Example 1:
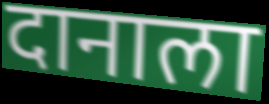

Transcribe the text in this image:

दानाला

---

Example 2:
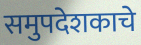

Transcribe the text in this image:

समुपदेशकाचे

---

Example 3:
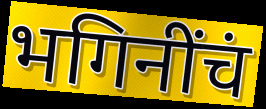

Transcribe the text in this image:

भगिनींचं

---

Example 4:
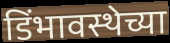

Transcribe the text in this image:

डिंभावस्थेच्या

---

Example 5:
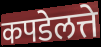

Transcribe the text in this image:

कपडेलत्ते